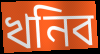
খনিব